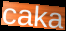
caka